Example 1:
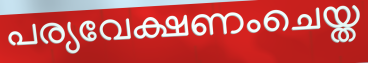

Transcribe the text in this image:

പര്യവേക്ഷണംചെയ്ത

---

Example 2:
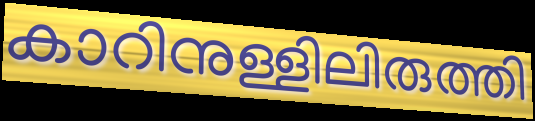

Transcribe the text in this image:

കാറിനുള്ളിലിരുത്തി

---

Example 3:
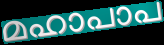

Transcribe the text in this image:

മഹാപാപ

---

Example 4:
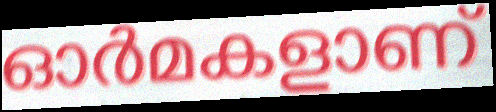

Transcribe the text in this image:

ഓർമകളാണ്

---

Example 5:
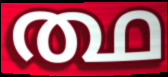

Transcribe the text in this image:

ത്ഥ